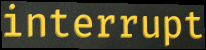
interrupt